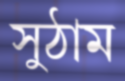
সুঠাম